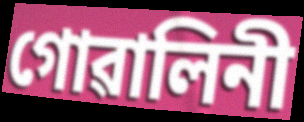
গোৱালিনী